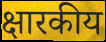
क्षारकीय